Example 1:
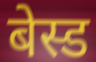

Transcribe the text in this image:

बेस्ड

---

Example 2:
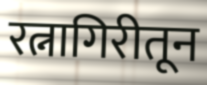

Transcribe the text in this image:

रत्नागिरीतून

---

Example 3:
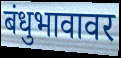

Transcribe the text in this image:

बंधुभावावर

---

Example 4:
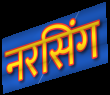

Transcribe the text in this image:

नरसिंग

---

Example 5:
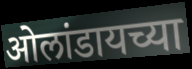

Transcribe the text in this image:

ओलांडायच्या